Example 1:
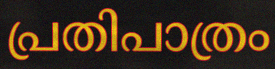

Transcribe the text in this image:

പ്രതിപാത്രം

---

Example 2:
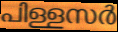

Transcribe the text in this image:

പിള്ളസർ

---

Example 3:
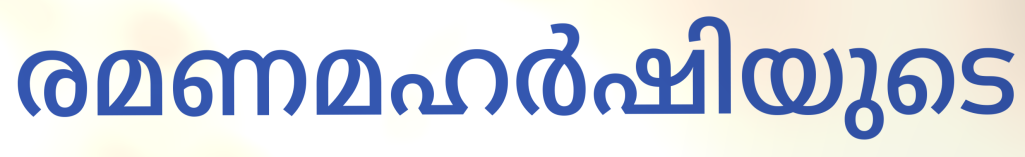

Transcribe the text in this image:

രമണമഹർഷിയുടെ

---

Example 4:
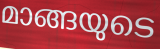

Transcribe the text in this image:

മാങ്ങയുടെ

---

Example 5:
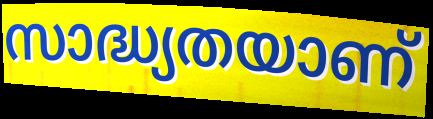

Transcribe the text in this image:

സാദ്ധ്യതയാണ്